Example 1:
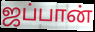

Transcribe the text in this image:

ஜப்பான்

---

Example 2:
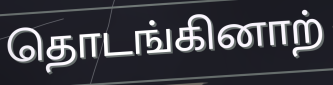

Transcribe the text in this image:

தொடங்கினாற்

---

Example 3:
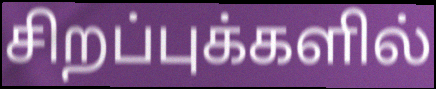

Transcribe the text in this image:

சிறப்புக்களில்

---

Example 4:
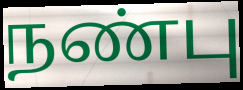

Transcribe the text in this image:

நண்பு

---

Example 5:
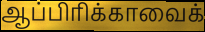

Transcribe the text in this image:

ஆப்பிரிக்காவைக்